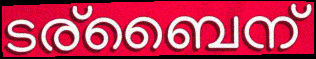
ടര്ബൈന്